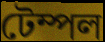
টেম্পল